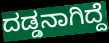
ದಡ್ಡನಾಗಿದ್ದೆ